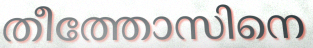
തീത്തോസിനെ